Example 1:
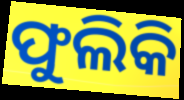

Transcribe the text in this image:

ଫୁଲିକି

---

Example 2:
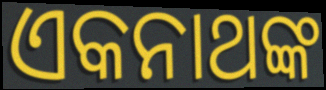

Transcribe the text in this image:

ଏକନାଥଙ୍କ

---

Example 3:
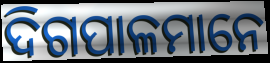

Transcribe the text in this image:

ଦିଗପାଳମାନେ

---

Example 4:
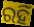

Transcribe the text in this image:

ରହିଁ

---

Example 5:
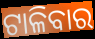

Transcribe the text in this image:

ଟାଳିବାର